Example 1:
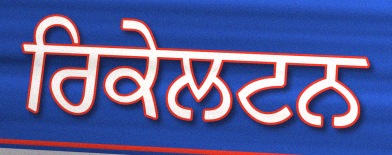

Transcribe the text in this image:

ਰਿਕੇਲਟਨ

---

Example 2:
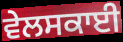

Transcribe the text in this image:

ਵੇਲਸਕਾਈ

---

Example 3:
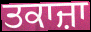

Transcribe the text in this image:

ਤਕਾਜ਼ਾ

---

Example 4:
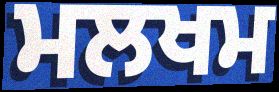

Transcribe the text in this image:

ਮਲਖਮ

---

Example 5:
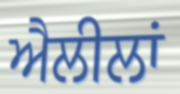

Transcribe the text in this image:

ਐਲੀਲਾਂ